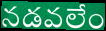
నడవలేం